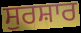
ਸੁਰਸ਼ਾਰ